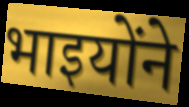
भाइयोंने